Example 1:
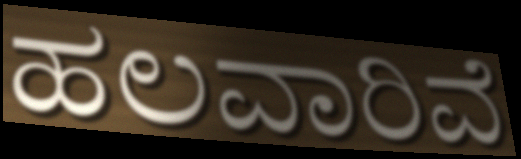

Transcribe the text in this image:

ಹಲವಾರಿವೆ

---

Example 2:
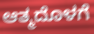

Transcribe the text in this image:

ಆತ್ಮದೊಳಗೆ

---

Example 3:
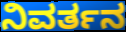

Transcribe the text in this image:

ನಿವರ್ತನ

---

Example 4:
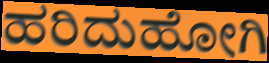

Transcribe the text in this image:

ಹರಿದುಹೋಗಿ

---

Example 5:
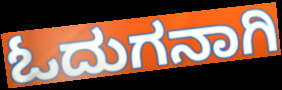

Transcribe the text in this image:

ಓದುಗನಾಗಿ